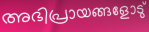
അഭിപ്രായങ്ങളോടു്